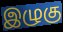
இழுகு